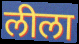
लीला